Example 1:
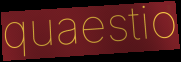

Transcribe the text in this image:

quaestio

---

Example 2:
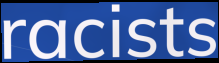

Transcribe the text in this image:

racists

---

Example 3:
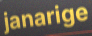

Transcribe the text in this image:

janarige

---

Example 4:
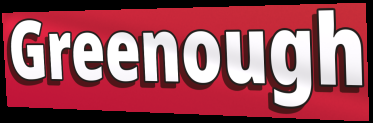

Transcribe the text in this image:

Greenough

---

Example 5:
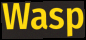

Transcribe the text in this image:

Wasp